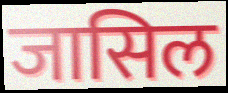
जासिल